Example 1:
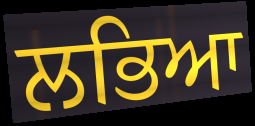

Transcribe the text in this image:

ਲਭਿਆ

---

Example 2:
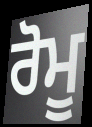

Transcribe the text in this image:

ਰੋਮੂ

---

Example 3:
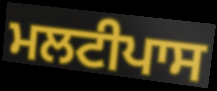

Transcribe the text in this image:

ਮਲਟੀਪਾਸ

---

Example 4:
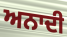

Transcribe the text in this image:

ਅਨਾਦੀ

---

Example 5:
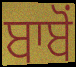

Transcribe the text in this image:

ਬਾਬੋਂ